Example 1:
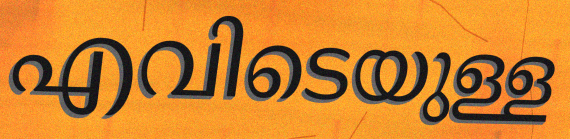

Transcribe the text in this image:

എവിടെയുള്ള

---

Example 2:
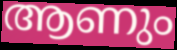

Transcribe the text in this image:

ആണും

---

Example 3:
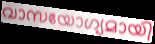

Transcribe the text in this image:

വാസയോഗ്യമായി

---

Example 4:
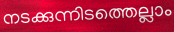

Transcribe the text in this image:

നടക്കുന്നിടത്തെല്ലാം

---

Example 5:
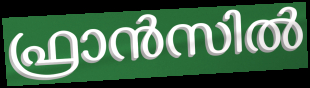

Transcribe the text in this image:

ഫ്രാൻസിൽ